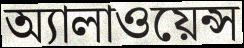
অ্যালাওয়েন্স